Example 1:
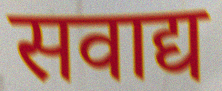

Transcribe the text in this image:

सवाद्य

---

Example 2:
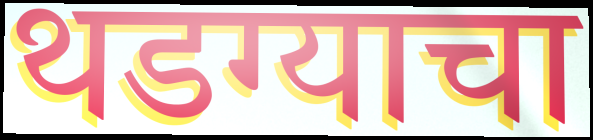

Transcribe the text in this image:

थडग्याचा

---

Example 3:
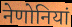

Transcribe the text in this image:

नेणोनियां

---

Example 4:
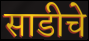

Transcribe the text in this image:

साडीचे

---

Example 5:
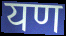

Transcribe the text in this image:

यण